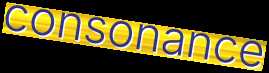
consonance